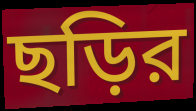
ছড়ির